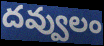
దవ్వులం